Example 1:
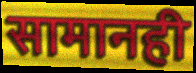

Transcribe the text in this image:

सामानही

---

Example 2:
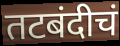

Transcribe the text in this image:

तटबंदीचं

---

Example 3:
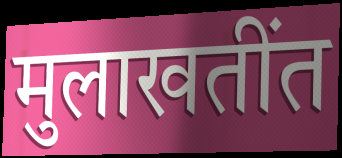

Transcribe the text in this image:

मुलाखतींत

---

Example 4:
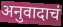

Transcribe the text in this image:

अनुवादाचं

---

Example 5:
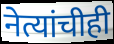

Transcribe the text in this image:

नेत्यांचीही